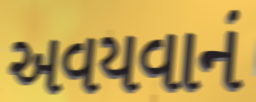
અવયવાનં